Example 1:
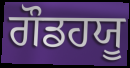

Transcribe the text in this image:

ਗੌਡਹਯੂ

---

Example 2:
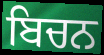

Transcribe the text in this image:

ਬਿਚਨ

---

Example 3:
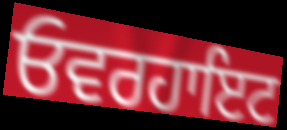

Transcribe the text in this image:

ਓਵਰਹਾਇਟ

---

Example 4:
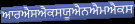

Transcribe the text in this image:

ਆਰਐਸਐਕਸਯੂਐਨਐਮਐਕਸ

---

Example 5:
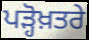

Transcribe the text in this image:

ਪੜ੍ਹੋਖ਼ਤਰੇ